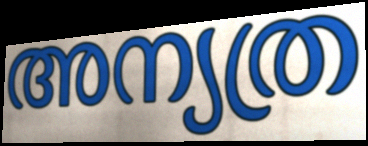
അന്യത്ര